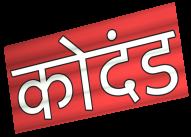
कोदंड